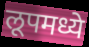
लूपमध्ये